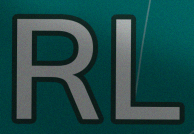
RL